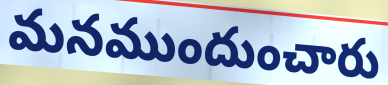
మనముందుంచారు